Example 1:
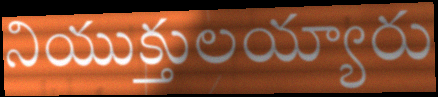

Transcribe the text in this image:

నియుక్తులయ్యారు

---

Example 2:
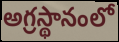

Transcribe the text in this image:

అగ్రస్థానంలో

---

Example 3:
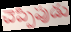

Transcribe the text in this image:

చెప్పిపుడు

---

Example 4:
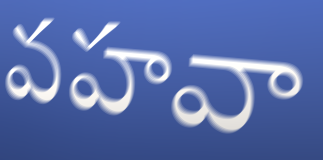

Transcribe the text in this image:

వహవా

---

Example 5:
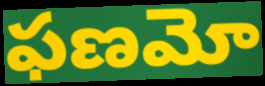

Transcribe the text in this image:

ఫణమో